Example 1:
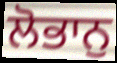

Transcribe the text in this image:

ਲੋਭਾਨੁ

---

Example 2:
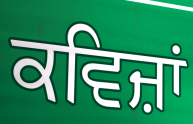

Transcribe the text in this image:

ਕਵਿਜ਼ਾਂ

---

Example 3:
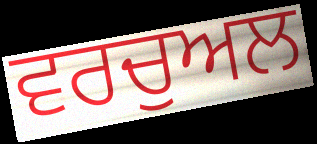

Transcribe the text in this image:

ਵਰਚੁਅਲ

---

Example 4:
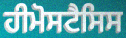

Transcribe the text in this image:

ਹੀਮੋਸਟੈਸਿਸ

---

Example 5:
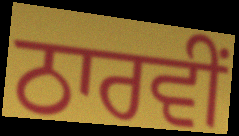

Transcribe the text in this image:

ਠਾਰਵੀਂ